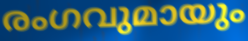
രംഗവുമായും